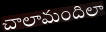
చాలామందిలా